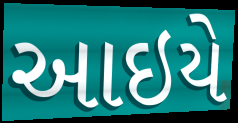
આઇયે